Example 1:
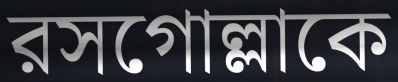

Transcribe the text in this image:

রসগোল্লাকে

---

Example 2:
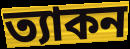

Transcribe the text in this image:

ত্যাকন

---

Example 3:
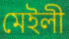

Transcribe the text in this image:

মেইলী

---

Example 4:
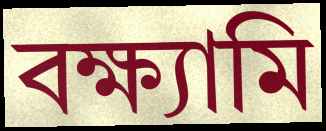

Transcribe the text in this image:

বক্ষ্যামি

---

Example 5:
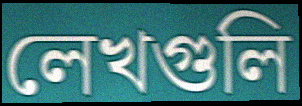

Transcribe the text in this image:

লেখগুলি